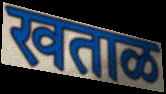
खताळ